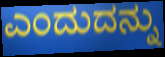
ಎಂದುದನ್ನು